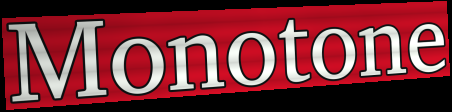
Monotone